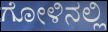
ಗೋಳಿನಲ್ಲಿ